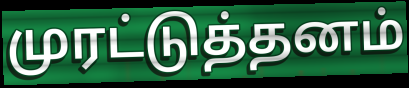
முரட்டுத்தனம்